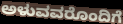
ಅಳುವವರೊಂದಿಗೆ